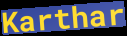
Karthar